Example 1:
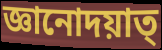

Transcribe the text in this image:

জ্ঞানোদয়াত্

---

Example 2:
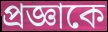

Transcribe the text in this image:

প্রজ্ঞাকে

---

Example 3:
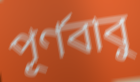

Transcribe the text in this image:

পূর্ণবাবু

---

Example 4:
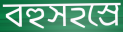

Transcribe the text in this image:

বহুসহস্রে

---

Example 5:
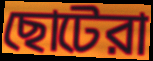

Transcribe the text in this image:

ছোটেরা